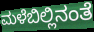
ಮಳೆಬಿಲ್ಲಿನಂತೆ